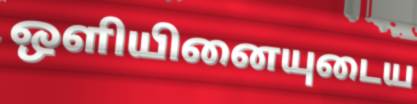
ஒளியினையுடைய